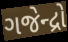
ગજેન્દ્રો